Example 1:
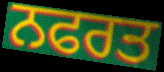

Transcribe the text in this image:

ਨਫਰਤ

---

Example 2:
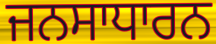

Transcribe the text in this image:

ਜਨਸਾਧਾਰਨ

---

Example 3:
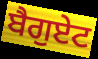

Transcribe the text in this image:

ਬੈਗੁਏਟ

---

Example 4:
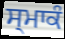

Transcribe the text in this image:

ਸ੍ਮਾਕੰ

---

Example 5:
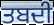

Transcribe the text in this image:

ਤਬਦੀ